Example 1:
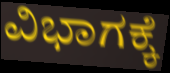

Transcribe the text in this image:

ವಿಭಾಗಕ್ಕೆ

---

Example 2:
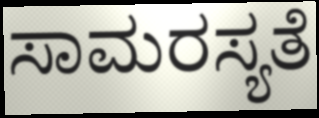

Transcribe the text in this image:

ಸಾಮರಸ್ಯತೆ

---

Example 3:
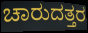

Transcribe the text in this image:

ಚಾರುದತ್ತರ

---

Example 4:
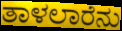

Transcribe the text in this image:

ತಾಳಲಾರೆನು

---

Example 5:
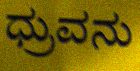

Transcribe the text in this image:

ಧ್ರುವನು